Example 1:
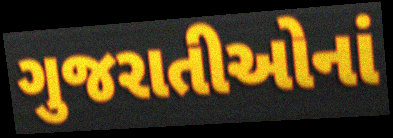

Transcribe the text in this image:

ગુજરાતીઓનાં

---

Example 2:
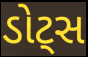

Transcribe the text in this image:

ડોટ્સ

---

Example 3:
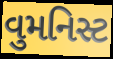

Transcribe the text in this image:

વુમનિસ્ટ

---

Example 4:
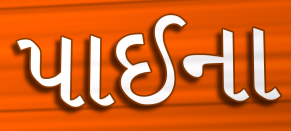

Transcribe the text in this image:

પાઈના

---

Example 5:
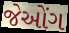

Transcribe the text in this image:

જેઓંગ